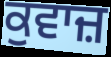
ਕੁਵਾਜ਼